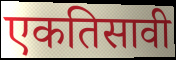
एकतिसावी